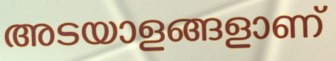
അടയാളങ്ങളാണ്